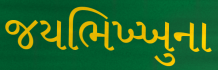
જયભિખ્ખુના